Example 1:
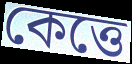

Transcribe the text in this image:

কেত্তে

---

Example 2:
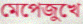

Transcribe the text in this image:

মেপেজুখে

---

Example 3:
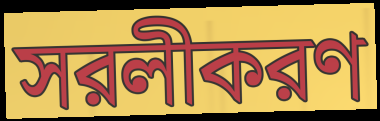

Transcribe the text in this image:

সরলীকরণ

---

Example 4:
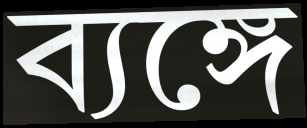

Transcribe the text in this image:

ব্যঙ্গে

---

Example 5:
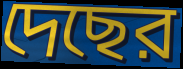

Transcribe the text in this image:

দেছের